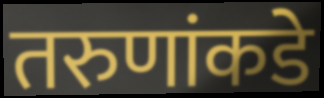
तरुणांकडे